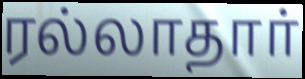
ரல்லாதார்